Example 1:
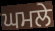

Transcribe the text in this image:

ਘਮਲੇ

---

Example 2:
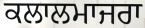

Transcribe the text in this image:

ਕਲਾਲਮਾਜਰਾ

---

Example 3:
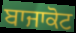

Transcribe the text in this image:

ਬਾਜਾਕੋਟ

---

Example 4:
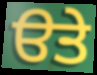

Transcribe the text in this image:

ੳਤੇ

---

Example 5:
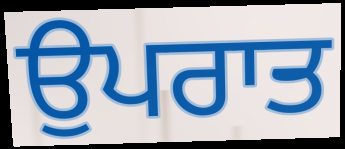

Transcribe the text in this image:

ਉਪਰਾਤ